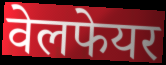
वेलफेयर